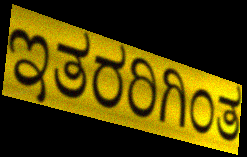
ಇತರರಿಗಿಂತ